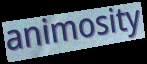
animosity